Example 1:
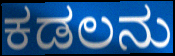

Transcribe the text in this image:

ಕಡಲನು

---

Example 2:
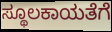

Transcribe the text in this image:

ಸ್ಥೂಲಕಾಯತೆಗೆ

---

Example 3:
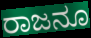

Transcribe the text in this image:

ರಾಜನೂ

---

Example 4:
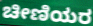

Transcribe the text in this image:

ಚೀಣಿಯರ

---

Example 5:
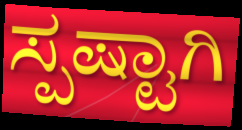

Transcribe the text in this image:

ಸ್ಪಷ್ಟಾಗಿ